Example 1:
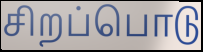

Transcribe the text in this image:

சிறப்பொடு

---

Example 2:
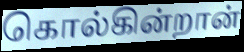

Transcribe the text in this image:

கொல்கின்றான்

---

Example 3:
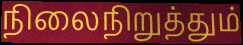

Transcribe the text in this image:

நிலைநிறுத்தும்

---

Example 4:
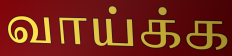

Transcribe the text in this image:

வாய்க்க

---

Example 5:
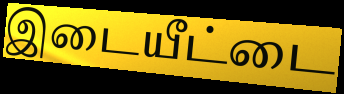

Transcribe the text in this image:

இடையீட்டை